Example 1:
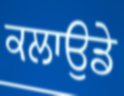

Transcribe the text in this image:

ਕਲਾਉਡੇ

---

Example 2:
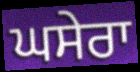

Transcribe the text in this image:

ਘਸੇਰਾ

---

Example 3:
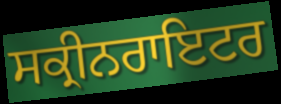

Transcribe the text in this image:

ਸਕ੍ਰੀਨਰਾਇਟਰ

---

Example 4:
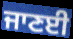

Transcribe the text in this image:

ਜਾਣਈ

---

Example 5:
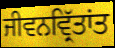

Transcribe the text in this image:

ਜੀਵਨਵ੍ਰਿੱਤਾਂਤ